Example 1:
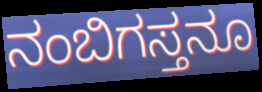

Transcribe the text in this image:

ನಂಬಿಗಸ್ತನೂ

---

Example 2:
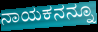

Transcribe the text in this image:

ನಾಯಕನನ್ನೂ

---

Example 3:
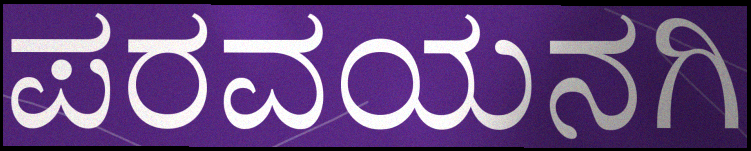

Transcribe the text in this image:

ಪರವಯನಗಿ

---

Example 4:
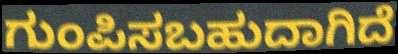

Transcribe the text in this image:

ಗುಂಪಿಸಬಹುದಾಗಿದೆ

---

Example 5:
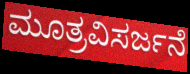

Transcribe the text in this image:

ಮೂತ್ರವಿಸರ್ಜನೆ